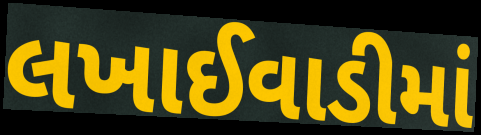
લખાઈવાડીમાં